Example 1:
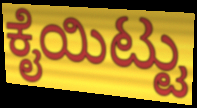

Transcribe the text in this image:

ಕೈಯಿಟ್ಟು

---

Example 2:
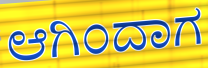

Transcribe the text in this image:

ಆಗಿಂದಾಗ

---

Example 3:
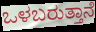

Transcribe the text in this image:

ಒಳಬರುತ್ತಾನೆ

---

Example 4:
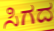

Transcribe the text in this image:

ಸಿಗದ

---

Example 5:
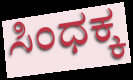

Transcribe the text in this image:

ಸಿಂಧಕ್ಕ